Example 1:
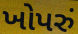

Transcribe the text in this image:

ખોપરું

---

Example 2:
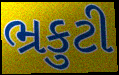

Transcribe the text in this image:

ભ્રકુટી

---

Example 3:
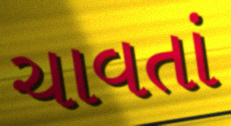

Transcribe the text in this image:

ચાવતાં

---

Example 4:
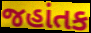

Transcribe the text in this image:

જહાંતક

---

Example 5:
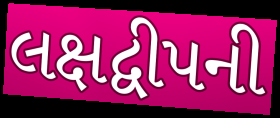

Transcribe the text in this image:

લક્ષદ્વીપની